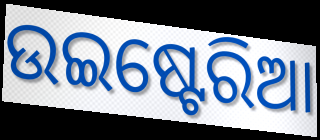
ଉଇଷ୍ଟେରିଆ